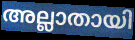
അല്ലാതായി